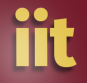
iit